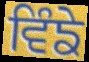
ਵਿੰਙੇ